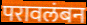
परावलंबन